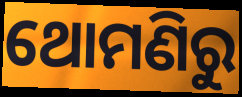
ଥୋମଣିରୁ